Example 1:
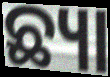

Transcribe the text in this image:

ଛ୍ୟା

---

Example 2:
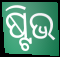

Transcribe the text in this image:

ଷ୍ଟିଭ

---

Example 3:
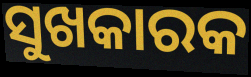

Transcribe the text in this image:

ସୁଖକାରକ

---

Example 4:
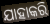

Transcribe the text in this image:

ଯାହାକରି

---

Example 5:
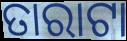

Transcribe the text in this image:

ତାରାଟା